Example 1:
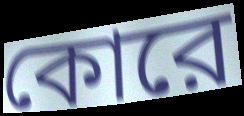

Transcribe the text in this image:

কোরে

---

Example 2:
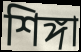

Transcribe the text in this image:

শিঙ্গা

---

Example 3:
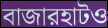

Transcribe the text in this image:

বাজারহাটও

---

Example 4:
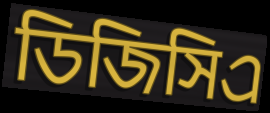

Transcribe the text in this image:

ডিজিসিএ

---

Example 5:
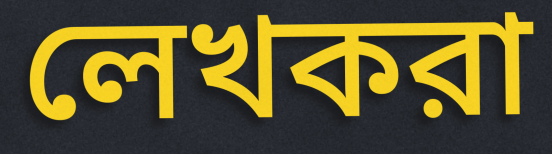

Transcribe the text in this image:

লেখকরা